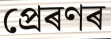
প্ৰেৰণৰ